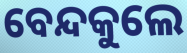
ବେନ୍ଦକୁଲେ